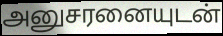
அனுசரனையுடன்